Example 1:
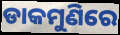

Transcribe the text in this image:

ଡାକମୁଣିରେ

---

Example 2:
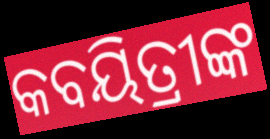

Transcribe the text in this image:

କବୟିତ୍ରୀଙ୍କ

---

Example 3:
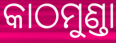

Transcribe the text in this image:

କାଠମୁଣ୍ଡା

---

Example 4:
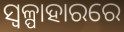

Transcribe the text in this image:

ସ୍ୱଳ୍ପାହାରରେ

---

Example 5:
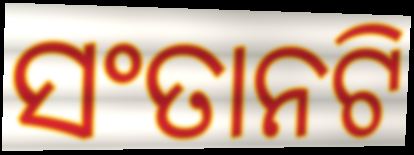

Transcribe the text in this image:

ସଂତାନଟି